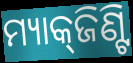
ମ୍ୟାକ୍‌ଜିଣ୍ଟି